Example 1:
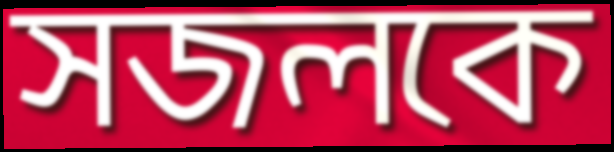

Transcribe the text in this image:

সজলকে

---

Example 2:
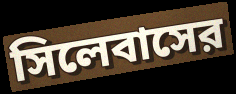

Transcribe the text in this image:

সিলেবাসের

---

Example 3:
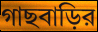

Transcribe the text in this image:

গাছবাড়ির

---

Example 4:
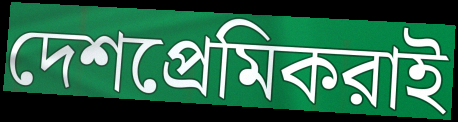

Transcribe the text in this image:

দেশপ্রেমিকরাই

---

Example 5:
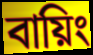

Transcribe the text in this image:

বায়িং